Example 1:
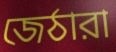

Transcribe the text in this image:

জেঠারা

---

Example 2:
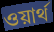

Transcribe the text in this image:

ওয়ার্থ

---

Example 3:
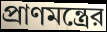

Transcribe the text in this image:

প্রাণমন্ত্রের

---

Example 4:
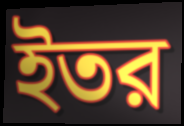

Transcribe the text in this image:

ইতর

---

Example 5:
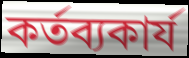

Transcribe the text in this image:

কর্তব্যকার্য